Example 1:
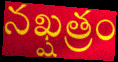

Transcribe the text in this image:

నఖ్షత్రం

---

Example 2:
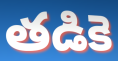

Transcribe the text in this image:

తడికె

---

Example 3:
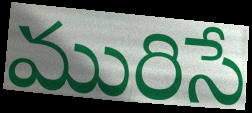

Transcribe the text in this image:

మురిసే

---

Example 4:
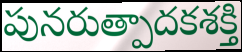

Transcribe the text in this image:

పునరుత్పాదకశక్తి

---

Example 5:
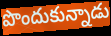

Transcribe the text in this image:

పొందుకున్నాడు